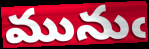
మునుఁ